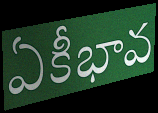
ఏకీభావ